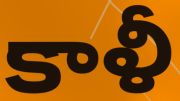
కాళీ